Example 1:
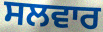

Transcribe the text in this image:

ਸਲਵਾਰ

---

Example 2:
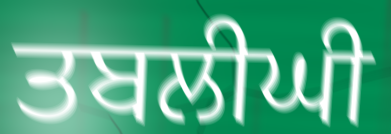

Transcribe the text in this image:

ਤਬਲੀਘੀ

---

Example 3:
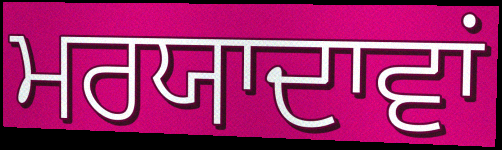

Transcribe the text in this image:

ਮਰਯਾਦਾਵਾਂ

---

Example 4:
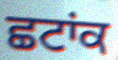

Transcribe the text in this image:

ਛਟਾਂਕ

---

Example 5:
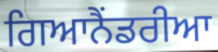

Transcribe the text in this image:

ਗਿਆਨੈਂਡਰੀਆ